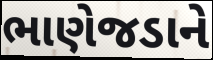
ભાણેજડાને